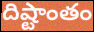
దిష్టాంతం